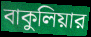
বাকুলিয়ার